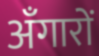
अँगारों